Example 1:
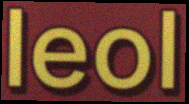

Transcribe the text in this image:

leol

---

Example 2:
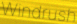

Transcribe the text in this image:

Windrush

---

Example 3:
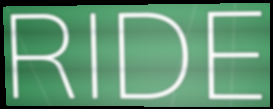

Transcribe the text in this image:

RIDE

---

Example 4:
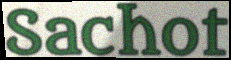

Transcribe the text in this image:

Sachot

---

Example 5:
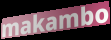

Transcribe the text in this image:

makambo